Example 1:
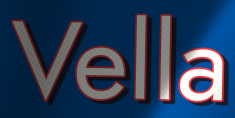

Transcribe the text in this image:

Vella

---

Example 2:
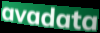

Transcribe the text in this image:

avadata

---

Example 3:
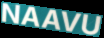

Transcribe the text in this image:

NAAVU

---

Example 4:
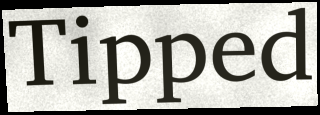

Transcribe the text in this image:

Tipped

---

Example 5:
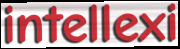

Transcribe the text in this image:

intellexi